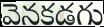
వెనకడగు